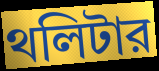
থলিটার